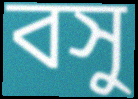
বসু